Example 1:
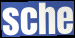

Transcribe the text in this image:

sche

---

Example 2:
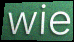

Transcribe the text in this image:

wie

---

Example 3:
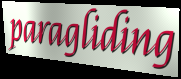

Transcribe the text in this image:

paragliding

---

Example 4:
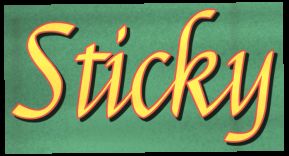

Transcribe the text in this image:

Sticky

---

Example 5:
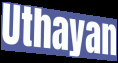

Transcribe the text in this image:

Uthayan